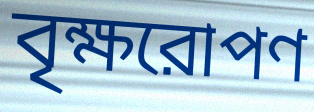
বৃক্ষরোপণ